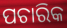
ପଚାରିକ